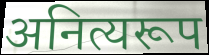
अनित्यरूप